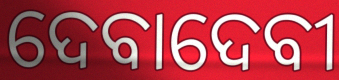
ଦେବାଦେବୀ